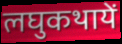
लघुकथायें